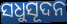
ସଧୁସୂଦନ